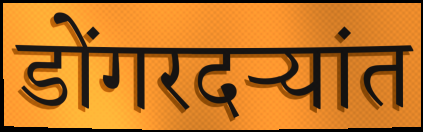
डोंगरदऱ्यांत